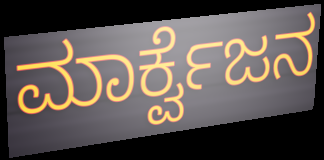
ಮಾರ್ಕ್ವೆಜನ